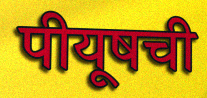
पीयूषची